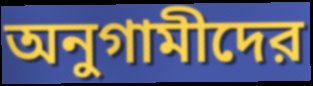
অনুগামীদের